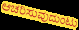
ಆಚರಿಸುವುದುಂಟು